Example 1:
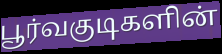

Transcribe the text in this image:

பூர்வகுடிகளின்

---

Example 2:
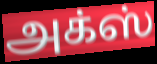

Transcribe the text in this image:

அக்ஸ்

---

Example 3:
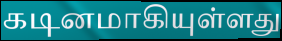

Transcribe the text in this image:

கடினமாகியுள்ளது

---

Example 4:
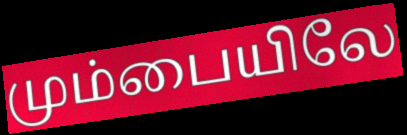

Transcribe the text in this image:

மும்பையிலே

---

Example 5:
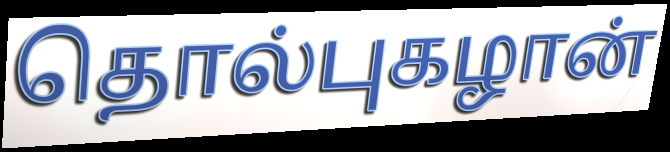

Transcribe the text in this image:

தொல்புகழான்